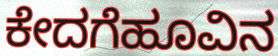
ಕೇದಗೆಹೂವಿನ